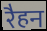
रैहन